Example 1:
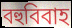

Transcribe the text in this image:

বহুবিবাহ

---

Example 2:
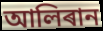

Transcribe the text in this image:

আলিৰান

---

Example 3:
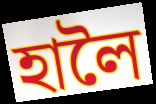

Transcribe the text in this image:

হালৈ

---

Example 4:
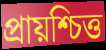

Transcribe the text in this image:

প্ৰায়শ্চিত্ত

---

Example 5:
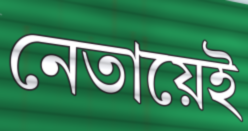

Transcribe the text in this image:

নেতায়েই